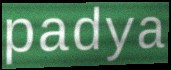
padya